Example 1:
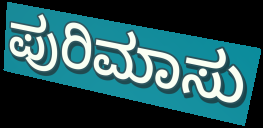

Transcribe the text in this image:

ಪುರಿಮಾಸು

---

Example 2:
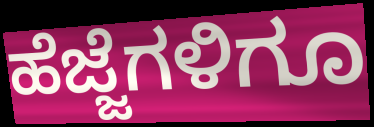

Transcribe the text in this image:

ಹೆಜ್ಜೆಗಳಿಗೂ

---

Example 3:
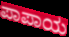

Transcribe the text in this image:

ಪಾಪಾಯ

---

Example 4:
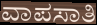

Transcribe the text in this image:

ವಾಪಸಾತಿ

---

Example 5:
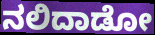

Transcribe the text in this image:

ನಲಿದಾಡೋ